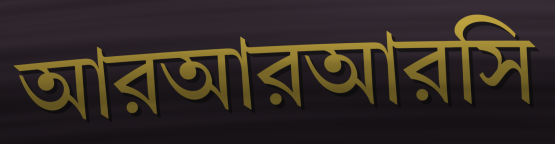
আরআরআরসি